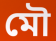
মৌ